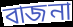
বাজনা